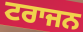
ਟਰਾਜਨ